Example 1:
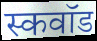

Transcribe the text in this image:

स्कवॉड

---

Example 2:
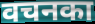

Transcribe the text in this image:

वचनका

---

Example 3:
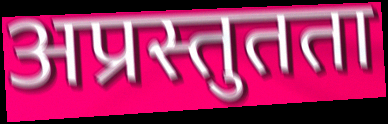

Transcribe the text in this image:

अप्रस्तुतता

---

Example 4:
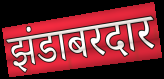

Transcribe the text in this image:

झंडाबरदार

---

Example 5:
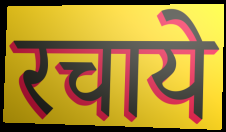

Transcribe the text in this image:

रचाये